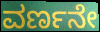
ವರ್ಣನೇ